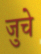
जुचे